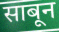
साबून